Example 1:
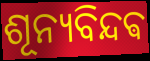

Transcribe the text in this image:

ଶୂନ୍ଯବିନ୍ଦଵ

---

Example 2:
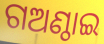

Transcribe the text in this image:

ଗଅଣ୍ଠାଇ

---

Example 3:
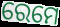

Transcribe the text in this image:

ରେମେ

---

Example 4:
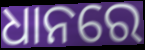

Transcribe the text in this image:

ଧାନରେ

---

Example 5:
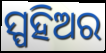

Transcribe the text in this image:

ସ୍ପହିଅର